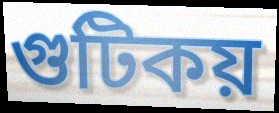
গুটিকয়